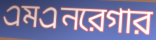
এমএনরেগার